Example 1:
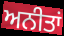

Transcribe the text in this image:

ਅਨੀਤਾਂ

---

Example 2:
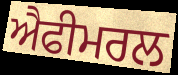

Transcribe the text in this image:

ਐਫੀਮਰਲ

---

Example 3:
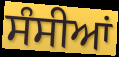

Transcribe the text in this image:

ਸੰਸੀਆਂ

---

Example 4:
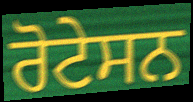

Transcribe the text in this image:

ਰੋਟੇਸਨ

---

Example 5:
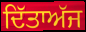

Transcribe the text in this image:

ਦਿੱਤਾਅੱਜ